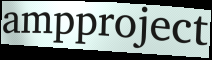
ampproject